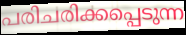
പരിചരിക്കപ്പെടുന്ന